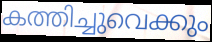
കത്തിച്ചുവെക്കും